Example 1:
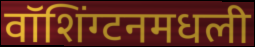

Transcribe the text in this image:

वॉशिंग्टनमधली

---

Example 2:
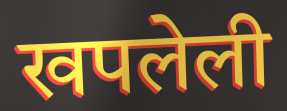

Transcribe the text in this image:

खपलेली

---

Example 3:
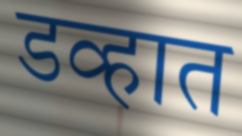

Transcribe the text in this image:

डव्हात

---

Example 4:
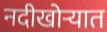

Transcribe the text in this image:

नदीखोर्‍यात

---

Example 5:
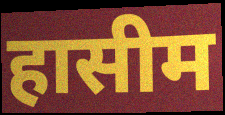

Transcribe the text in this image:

हासीम